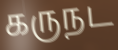
கருநட